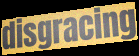
disgracing